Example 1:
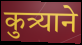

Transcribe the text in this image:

कुत्र्याने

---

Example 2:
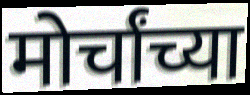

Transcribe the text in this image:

मोर्चांच्या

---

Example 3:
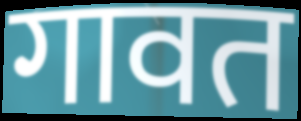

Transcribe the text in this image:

गावत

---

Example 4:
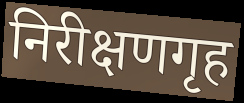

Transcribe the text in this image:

निरीक्षणगृह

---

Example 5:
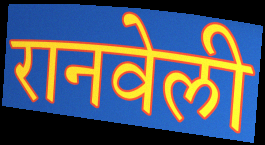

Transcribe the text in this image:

रानवेली